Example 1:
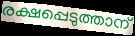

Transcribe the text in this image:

രക്ഷപ്പെടുത്താന്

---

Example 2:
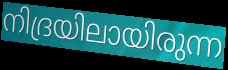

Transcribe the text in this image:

നിദ്രയിലായിരുന്ന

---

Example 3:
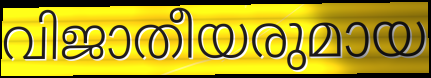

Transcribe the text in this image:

വിജാതീയരുമായ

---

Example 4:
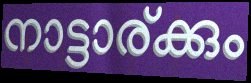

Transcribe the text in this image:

നാട്ടാര്ക്കും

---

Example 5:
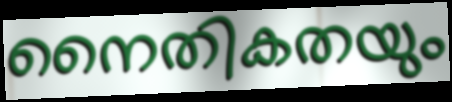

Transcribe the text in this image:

നൈതികതയും